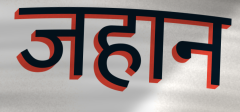
जहान